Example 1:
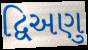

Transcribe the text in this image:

દ્વિઅણુ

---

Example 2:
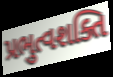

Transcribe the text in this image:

પ્રભુત્વશક્તિ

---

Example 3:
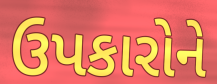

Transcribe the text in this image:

ઉપકારોને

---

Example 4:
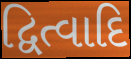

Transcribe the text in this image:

દ્વિત્વાદિ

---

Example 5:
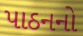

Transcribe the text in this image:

પાઠનનો